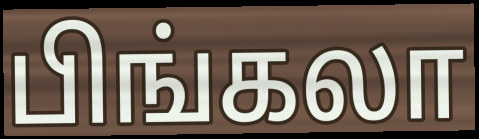
பிங்கலா